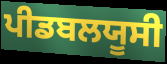
ਪੀਡਬਲਯੂਸੀ